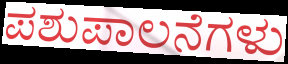
ಪಶುಪಾಲನೆಗಳು